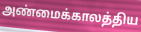
அண்மைக்காலத்திய